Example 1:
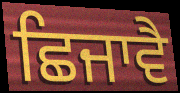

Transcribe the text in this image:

ਛਿਜਾਵੈ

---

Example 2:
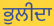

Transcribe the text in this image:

ਭੁਲੀਦਾ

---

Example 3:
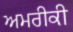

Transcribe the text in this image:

ਅਮਰੀਕੀ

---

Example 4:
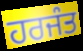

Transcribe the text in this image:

ਹਰਜੰਤ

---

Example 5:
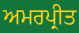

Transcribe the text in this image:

ਅਮਰਪ੍ਰੀਤ